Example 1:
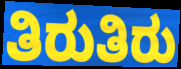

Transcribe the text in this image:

ತಿರುತಿರು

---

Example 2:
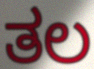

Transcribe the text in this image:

ತಲ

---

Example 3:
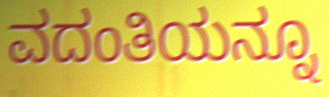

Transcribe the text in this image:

ವದಂತಿಯನ್ನೂ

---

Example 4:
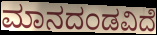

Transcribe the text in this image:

ಮಾನದಂಡವಿದೆ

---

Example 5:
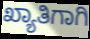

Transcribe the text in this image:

ಖ್ಯಾತಿಗಾಗಿ